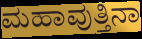
ಮಹಾವುತ್ತಿನಾ